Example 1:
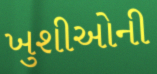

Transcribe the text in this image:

ખુશીઓની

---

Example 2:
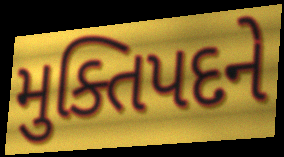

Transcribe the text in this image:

મુક્તિપદને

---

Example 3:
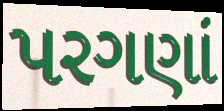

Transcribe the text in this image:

પરગણાં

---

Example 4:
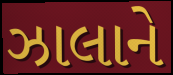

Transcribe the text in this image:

ઝાલાને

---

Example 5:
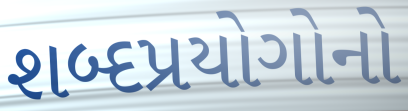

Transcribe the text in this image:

શબ્દપ્રયોગોનો